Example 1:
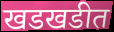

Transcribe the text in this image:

खडखडीत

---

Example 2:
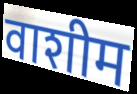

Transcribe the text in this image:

वाशीम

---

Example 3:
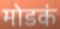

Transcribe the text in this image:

मोडकं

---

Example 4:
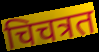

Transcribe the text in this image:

चिचत्रत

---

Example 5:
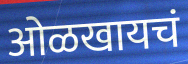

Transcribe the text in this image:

ओळखायचं